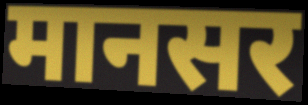
मानसर